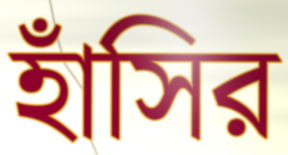
হাঁসির